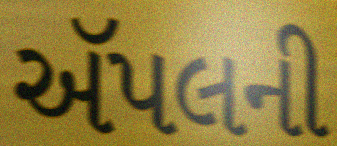
ઍપલની